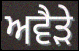
ਅਵੈੜੇ